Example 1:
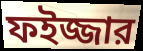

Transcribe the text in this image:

ফইজ্জার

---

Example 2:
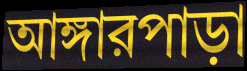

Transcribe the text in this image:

আঙ্গারপাড়া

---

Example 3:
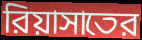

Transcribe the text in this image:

রিয়াসাতের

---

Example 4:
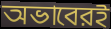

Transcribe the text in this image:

অভাবেরই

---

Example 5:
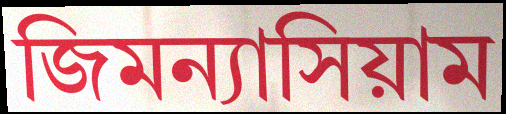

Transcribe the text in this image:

জিমন্যাসিয়াম